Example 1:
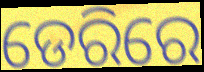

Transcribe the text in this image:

ଡେରିରେ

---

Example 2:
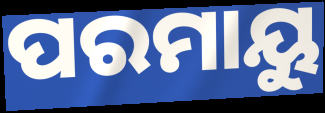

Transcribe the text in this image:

ପରମାୟୁ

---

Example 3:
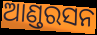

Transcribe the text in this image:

ଆଣ୍ଡରସନ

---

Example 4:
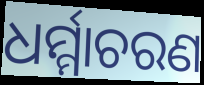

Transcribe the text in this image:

ଧର୍ମ୍ମାଚରଣ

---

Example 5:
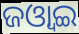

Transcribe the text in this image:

ଜଓ୍ବାଇ